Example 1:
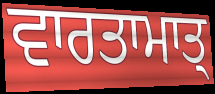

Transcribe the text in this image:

ਵਾਰਤਾਮਾਤ੍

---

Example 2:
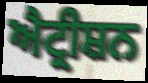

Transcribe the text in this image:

ਐਟ੍ਰੀਸ਼ਨ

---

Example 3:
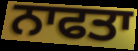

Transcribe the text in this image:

ਨਾਫਤਾ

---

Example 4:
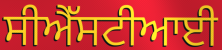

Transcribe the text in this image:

ਸੀਐੱਸਟੀਆਈ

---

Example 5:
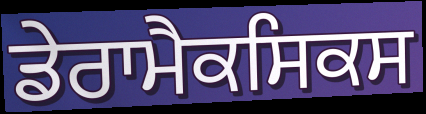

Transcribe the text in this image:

ਡੇਰਾਮੈਕਸਿਕਸ